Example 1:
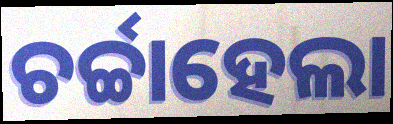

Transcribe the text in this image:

ଚର୍ଚ୍ଚାହେଲା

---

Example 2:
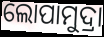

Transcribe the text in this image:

ଲୋପାମୁଦ୍ରା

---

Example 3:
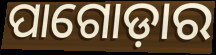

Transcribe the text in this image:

ପାଗୋଡ଼ାର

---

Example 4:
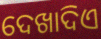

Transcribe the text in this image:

ଦେଖାଦିଏ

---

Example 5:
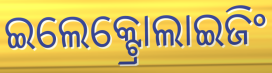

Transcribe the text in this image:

ଇଲେକ୍ଟ୍ରୋଲାଇଜିଂ